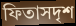
ফিতাসদৃশ